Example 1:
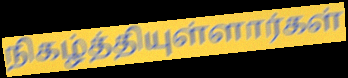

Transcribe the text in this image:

நிகழ்த்தியுள்ளார்கள்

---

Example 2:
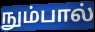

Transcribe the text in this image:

நும்பால்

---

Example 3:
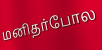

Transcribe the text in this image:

மனிதர்போல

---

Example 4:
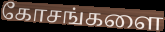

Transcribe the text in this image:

கோசங்களை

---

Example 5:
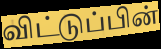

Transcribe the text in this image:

விட்டுப்பின்